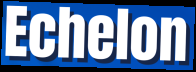
Echelon